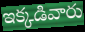
ఇక్కడివారు